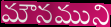
మౌనముని